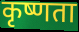
कृष्णता